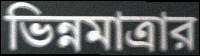
ভিন্নমাত্রার